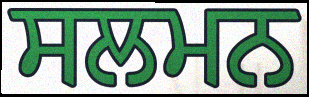
ਸਲਮਨ